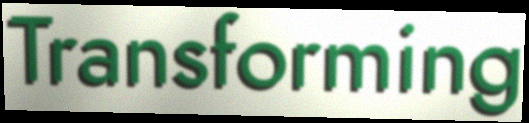
Transforming